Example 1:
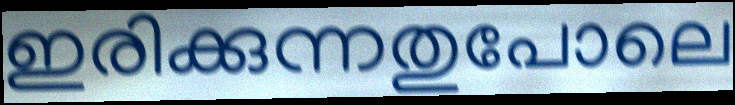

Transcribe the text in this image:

ഇരിക്കുന്നതുപോലെ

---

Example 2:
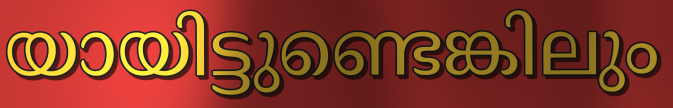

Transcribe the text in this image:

യായിട്ടുണ്ടെങ്കിലും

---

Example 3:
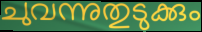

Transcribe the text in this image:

ചുവന്നുതുടുക്കും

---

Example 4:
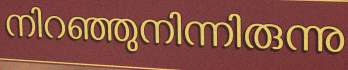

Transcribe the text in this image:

നിറഞ്ഞുനിന്നിരുന്നു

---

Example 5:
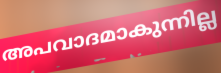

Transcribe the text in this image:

അപവാദമാകുന്നില്ല